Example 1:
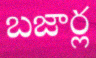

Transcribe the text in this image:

బజార్ల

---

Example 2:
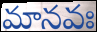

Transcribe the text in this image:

మానవః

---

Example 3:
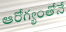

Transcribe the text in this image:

ఆరోగ్యంతోనే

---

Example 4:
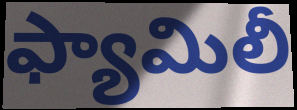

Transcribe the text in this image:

ఫ్యామిలీ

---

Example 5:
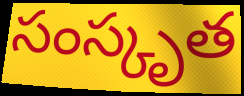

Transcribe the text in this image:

సంస్కృత